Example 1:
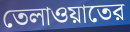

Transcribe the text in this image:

তেলাওয়াতের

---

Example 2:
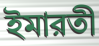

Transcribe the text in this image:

ইমারতী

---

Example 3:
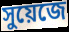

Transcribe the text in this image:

সুয়েজে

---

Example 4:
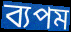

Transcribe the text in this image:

ব্যপম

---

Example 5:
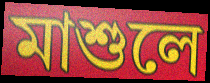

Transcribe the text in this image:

মাশুলে